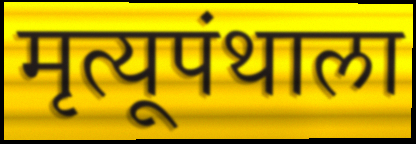
मृत्यूपंथाला